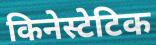
किनेस्टेटिक